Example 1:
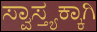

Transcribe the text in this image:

ಸ್ವಾಸ್ತ್ಯಕ್ಕಾಗಿ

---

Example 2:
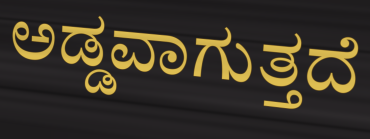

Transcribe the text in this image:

ಅಡ್ಡವಾಗುತ್ತದೆ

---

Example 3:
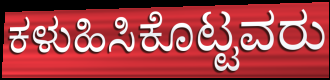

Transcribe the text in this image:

ಕಳುಹಿಸಿಕೊಟ್ಟವರು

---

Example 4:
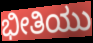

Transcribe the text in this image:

ಭೀತಿಯು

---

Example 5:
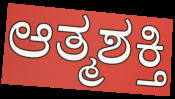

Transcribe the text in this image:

ಆತ್ಮಶಕ್ತಿ